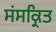
ਸਂਸਕ੍ਰਿਤ